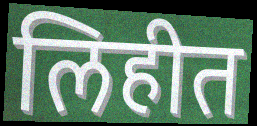
लिहीत